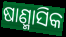
ଷାଣ୍ମାସିକ